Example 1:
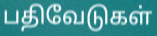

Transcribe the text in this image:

பதிவேடுகள்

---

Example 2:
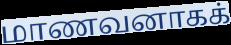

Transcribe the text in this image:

மாணவனாகக்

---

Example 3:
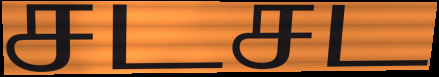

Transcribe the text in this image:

சடசட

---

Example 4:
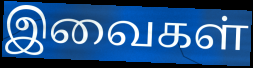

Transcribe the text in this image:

இவைகள்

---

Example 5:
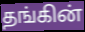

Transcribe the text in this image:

தங்கின்